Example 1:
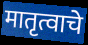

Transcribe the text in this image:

मातृत्वाचे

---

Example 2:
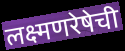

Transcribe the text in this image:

लक्ष्मणरेषेची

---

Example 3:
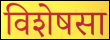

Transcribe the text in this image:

विशेषसा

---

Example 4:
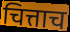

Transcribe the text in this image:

चित्ताच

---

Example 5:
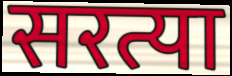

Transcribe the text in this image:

सरत्या